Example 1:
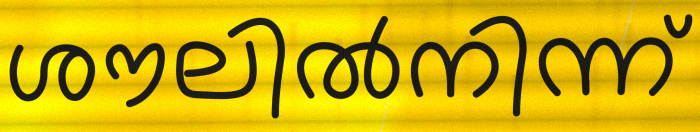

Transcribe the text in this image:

ശൗലിൽനിന്ന്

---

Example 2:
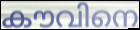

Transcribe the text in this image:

കൗവിനെ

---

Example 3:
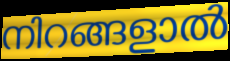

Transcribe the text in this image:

നിറങ്ങളാൽ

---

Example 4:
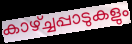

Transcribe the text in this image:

കാഴ്ച്ചപ്പാടുകളും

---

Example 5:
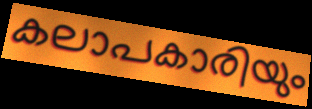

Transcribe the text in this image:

കലാപകാരിയും